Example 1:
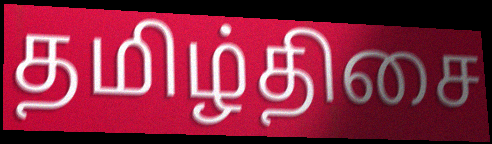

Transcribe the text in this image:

தமிழ்திசை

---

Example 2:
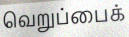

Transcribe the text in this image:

வெறுப்பைக்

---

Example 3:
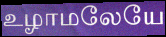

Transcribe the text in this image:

உழாமலேயே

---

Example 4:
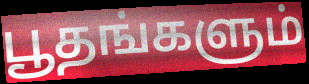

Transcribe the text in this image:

பூதங்களும்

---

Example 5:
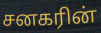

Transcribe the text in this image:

சனகரின்